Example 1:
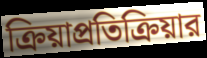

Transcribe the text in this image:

ক্রিয়াপ্রতিক্রিয়ার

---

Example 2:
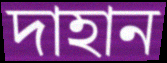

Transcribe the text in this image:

দাহান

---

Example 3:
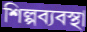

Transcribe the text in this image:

শিল্পব্যবস্থা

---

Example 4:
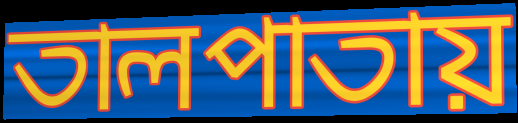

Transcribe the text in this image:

তালপাতায়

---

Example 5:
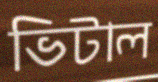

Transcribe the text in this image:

ভিটাল